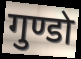
गुण्डो